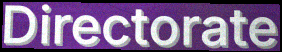
Directorate